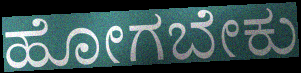
ಹೋಗಬೇಕು